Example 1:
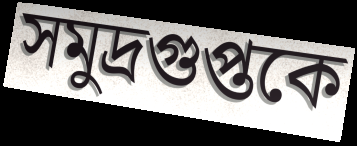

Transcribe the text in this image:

সমুদ্রগুপ্তকে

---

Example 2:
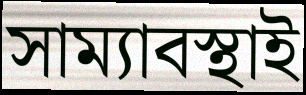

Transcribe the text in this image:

সাম্যাবস্থাই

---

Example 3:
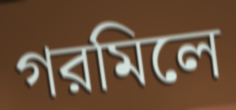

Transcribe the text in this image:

গরমিলে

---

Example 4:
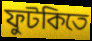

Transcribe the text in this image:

ফুটকিতে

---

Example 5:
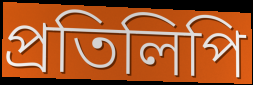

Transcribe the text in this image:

প্রতিলিপি